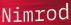
Nimrod